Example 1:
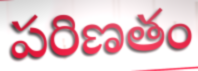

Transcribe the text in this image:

పరిణతం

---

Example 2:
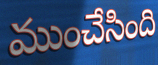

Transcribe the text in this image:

ముంచేసింది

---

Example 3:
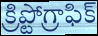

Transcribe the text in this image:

క్రిప్టోగ్రాఫిక్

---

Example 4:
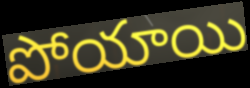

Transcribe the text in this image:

పోయాయి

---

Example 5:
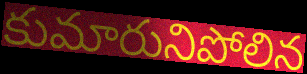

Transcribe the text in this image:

కుమారునిపోలిన